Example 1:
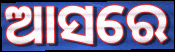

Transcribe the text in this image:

ଆସରେ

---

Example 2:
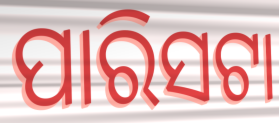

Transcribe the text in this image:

ପାରିସଟା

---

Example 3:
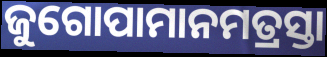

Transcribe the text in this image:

ଜୁଗୋପାମାନମତ୍ରସ୍ତା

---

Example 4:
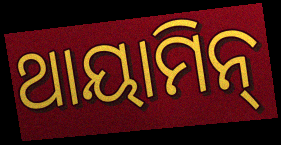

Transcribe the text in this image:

ଥାୟାମିନ୍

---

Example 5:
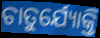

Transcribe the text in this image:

ଚାତୁର୍ଯ୍ୟୋକ୍ତି